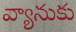
వ్యానుకు